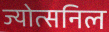
ज्योत्सनिल